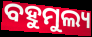
ବହୁମୁଲ୍ୟ